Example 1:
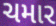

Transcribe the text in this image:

ચમાર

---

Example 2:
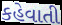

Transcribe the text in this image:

કહેવાતી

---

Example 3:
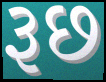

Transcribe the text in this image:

રૂછ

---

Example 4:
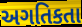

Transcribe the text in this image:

અગતિકતા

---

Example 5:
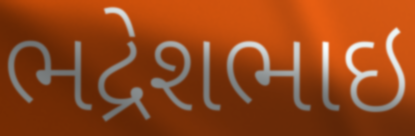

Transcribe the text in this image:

ભદ્રેશભાઇ